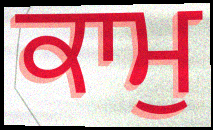
ਕਾਮੁ